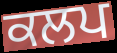
ਕਲਪ